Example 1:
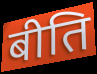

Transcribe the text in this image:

बीति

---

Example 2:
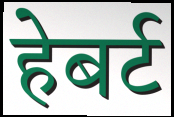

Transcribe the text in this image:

हेबर्ट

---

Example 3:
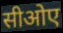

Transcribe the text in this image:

सीओए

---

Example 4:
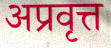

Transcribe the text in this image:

अप्रवृत्त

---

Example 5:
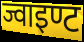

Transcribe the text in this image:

ज्वाइण्ट